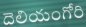
దెలియంగోరి